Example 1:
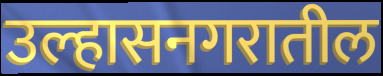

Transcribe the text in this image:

उल्हासनगरातील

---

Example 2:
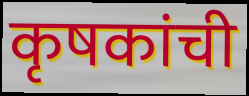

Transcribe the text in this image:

कृषकांची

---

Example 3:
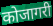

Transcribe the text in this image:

कोजागरी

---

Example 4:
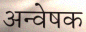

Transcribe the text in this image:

अन्वेषक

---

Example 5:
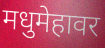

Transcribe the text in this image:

मधुमेहावर